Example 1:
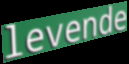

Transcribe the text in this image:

levende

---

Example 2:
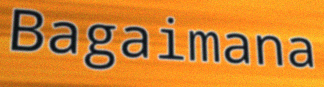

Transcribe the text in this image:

Bagaimana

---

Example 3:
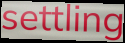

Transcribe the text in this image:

settling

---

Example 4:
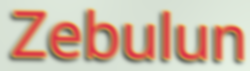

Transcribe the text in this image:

Zebulun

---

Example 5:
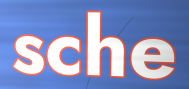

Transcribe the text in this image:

sche